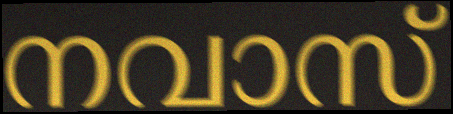
നവാസ്